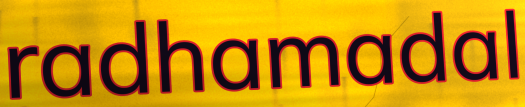
radhamadal